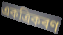
একত্ৰিকৰণ